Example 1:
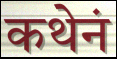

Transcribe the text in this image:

कथेनं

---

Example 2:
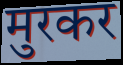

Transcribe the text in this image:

मुरकर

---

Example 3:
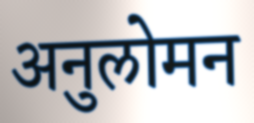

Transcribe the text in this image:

अनुलोमन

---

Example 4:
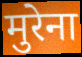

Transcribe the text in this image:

मुरेना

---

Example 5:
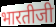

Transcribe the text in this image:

भारतीजी